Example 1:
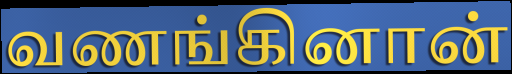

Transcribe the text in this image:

வணங்கினான்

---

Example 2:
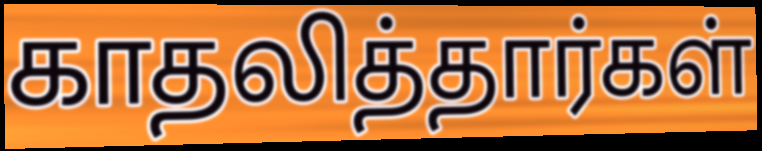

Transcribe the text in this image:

காதலித்தார்கள்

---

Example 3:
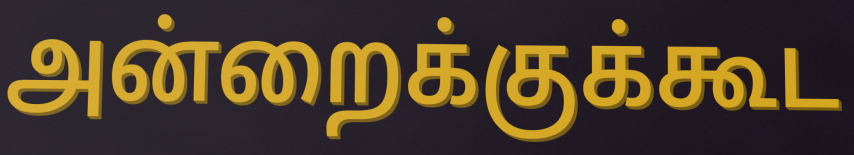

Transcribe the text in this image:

அன்றைக்குக்கூட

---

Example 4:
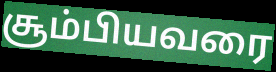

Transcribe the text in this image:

சூம்பியவரை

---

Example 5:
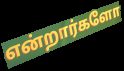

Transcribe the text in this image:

என்றார்களோ